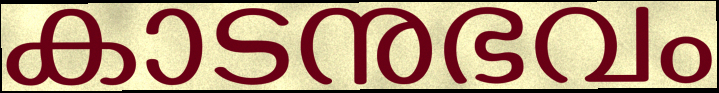
കാടനുഭവം